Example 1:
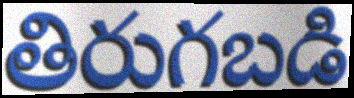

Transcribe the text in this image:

తిరుగబడి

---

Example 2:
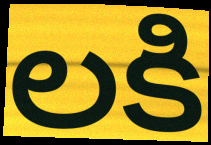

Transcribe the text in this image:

లకి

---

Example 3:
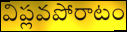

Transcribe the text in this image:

విప్లవపోరాటం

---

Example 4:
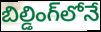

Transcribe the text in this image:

బిల్డింగ్‌లోనే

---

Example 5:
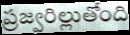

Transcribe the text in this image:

ప్రజ్వరిల్లుతోంది